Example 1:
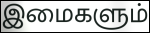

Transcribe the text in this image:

இமைகளும்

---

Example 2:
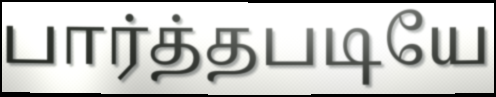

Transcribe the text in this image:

பார்த்தபடியே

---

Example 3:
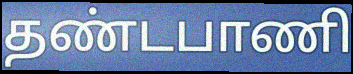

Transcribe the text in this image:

தண்டபாணி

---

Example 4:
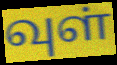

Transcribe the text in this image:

வுள்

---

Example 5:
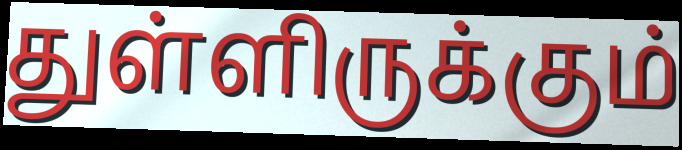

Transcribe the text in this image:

துள்ளிருக்கும்